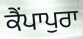
ਕੈਂਪਾਪੁਰਾ